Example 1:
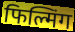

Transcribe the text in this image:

फिल्मिंग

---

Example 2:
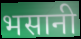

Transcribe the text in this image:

भसानी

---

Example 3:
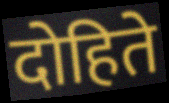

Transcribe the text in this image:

दोहिते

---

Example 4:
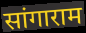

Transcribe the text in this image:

सांगाराम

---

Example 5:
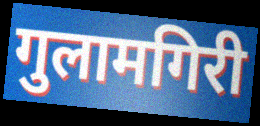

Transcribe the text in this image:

गुलामगिरी